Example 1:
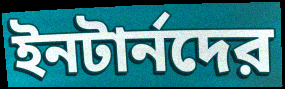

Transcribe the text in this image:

ইনটার্নদের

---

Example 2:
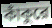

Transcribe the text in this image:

কাঁকুরে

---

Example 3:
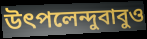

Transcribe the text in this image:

উৎপলেন্দুবাবুও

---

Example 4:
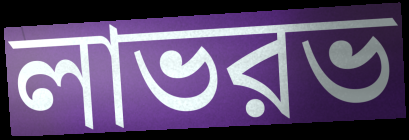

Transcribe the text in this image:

লাভরভ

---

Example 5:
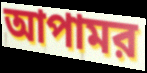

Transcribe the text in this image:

আপামর